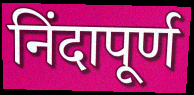
निंदापूर्ण